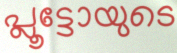
പ്ലൂട്ടോയുടെ